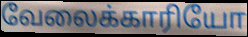
வேலைக்காரியோ